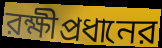
রক্ষীপ্রধানের